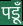
पडूँ